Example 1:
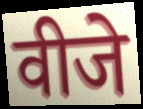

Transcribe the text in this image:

वीजे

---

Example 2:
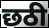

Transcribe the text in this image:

छठी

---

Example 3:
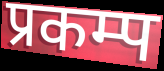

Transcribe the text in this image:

प्रकम्प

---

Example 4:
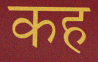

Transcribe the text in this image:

कह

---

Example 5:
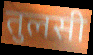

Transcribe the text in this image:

तुलसी